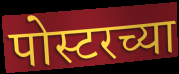
पोस्टरच्या